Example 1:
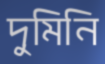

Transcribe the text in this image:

দুমিনি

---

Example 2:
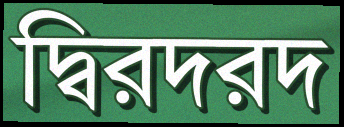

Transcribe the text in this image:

দ্বিরদরদ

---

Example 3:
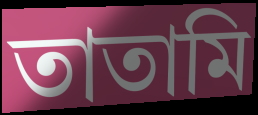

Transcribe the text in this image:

তাতামি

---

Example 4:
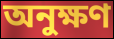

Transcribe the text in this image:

অনুক্ষণ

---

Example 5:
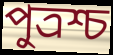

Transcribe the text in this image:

পুত্রশ্চ